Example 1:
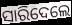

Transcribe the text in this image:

ସାରିଦେଲେ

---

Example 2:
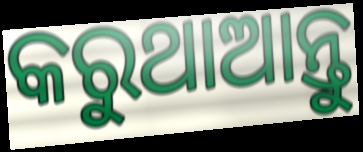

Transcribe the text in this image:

କରୁଥାଆନ୍ତୁ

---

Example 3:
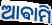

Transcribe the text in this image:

ଆଵାମି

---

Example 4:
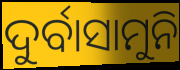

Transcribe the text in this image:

ଦୁର୍ବାସାମୁନି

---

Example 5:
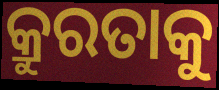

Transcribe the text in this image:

କ୍ରୁରତାକୁ